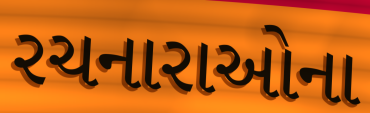
રચનારાઓના